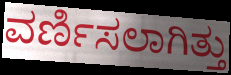
ವರ್ಣಿಸಲಾಗಿತ್ತು